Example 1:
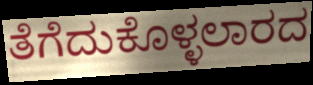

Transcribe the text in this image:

ತೆಗೆದುಕೊಳ್ಳಲಾರದ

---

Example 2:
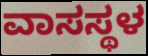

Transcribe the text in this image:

ವಾಸಸ್ಥಳ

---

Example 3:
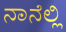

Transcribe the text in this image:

ನಾನೆಲ್ಲಿ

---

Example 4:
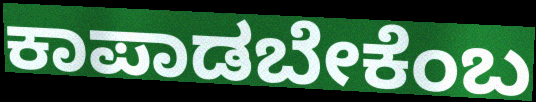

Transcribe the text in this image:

ಕಾಪಾಡಬೇಕೆಂಬ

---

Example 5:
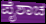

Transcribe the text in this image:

ಪೈಶಾಚ